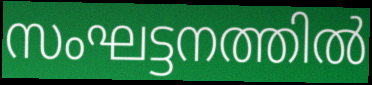
സംഘട്ടനത്തിൽ